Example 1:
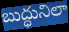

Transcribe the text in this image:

బుద్ధునిలా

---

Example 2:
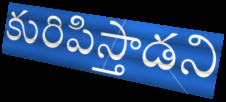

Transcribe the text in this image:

కురిపిస్తాడని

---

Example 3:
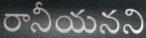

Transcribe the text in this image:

రానీయనని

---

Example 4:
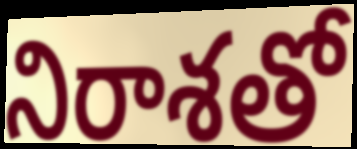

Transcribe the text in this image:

నిరాశతో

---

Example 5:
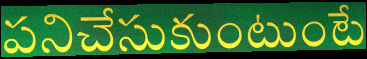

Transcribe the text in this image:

పనిచేసుకుంటుంటే